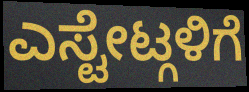
ಎಸ್ಟೇಟ್ಗಳಿಗೆ